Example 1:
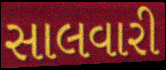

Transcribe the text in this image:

સાલવારી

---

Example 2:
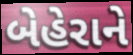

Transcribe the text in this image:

બેહેરાને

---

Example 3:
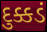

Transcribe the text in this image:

દુક્કડં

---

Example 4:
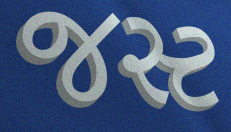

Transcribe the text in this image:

જસ્ટ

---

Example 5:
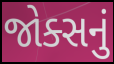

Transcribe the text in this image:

જોક્સનું